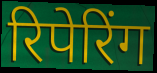
रिपेरिंग